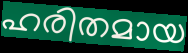
ഹരിതമായ